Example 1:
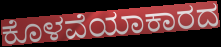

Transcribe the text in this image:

ಕೊಳವೆಯಾಕಾರದ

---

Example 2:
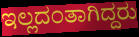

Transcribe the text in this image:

ಇಲ್ಲದಂತಾಗಿದ್ದರು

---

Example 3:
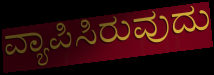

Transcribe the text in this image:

ವ್ಯಾಪಿಸಿರುವುದು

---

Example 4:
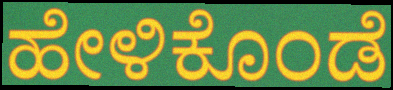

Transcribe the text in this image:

ಹೇಳಿಕೊಂಡೆ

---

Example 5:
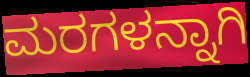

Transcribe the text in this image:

ಮರಗಳನ್ನಾಗಿ